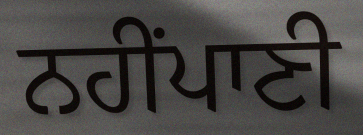
ਨਹੀਂਪਾਣੀ